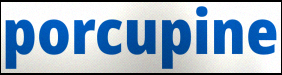
porcupine